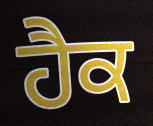
ਹੈਕ